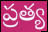
ప్రత్య